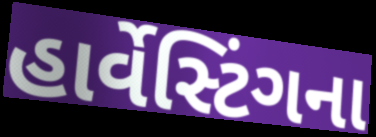
હાર્વેસ્ટિંગના